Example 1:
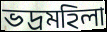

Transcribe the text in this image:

ভদ্রমহিলা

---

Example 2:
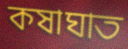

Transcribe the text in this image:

কষাঘাত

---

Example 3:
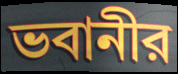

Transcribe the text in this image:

ভবানীর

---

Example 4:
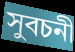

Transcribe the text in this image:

সুবচনী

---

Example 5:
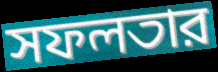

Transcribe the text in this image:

সফলতার